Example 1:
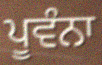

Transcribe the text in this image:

ਪੂਵੰਨਾ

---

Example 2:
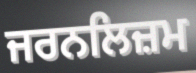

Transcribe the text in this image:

ਜਰਨਲਿਜ਼ਮ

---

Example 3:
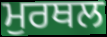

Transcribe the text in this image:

ਮੁਰਥਲ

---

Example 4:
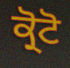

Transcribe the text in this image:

ਕ੍ਰੋਟੋ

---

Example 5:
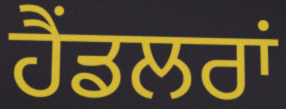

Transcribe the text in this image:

ਹੈਂਡਲਰਾਂ